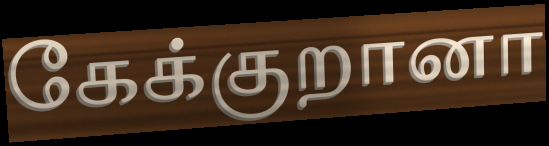
கேக்குறானா